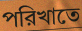
পরিখাতে